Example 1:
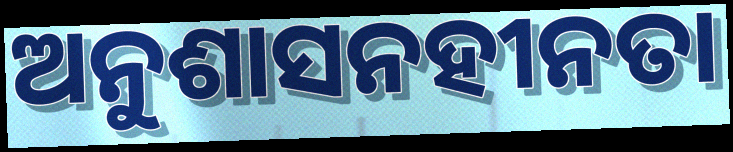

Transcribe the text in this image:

ଅନୁଶାସନହୀନତା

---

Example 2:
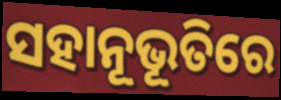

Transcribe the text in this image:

ସହାନୂଭୂତିରେ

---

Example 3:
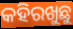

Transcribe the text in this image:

କହିରଖୁଛୁ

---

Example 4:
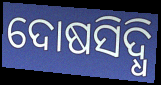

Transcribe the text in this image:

ଦୋଷସିଦ୍ଧି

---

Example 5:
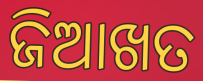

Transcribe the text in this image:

ଜିଆଖତ